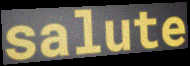
salute